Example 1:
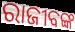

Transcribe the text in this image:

ରାଜୀବଙ୍କ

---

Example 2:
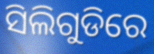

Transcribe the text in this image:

ସିଲିଗୁଡିରେ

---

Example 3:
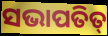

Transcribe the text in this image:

ସଭାପତିତ୍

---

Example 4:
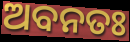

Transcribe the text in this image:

ଅବନତଃ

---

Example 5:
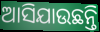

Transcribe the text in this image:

ଆସିଯାଉଛନ୍ତି